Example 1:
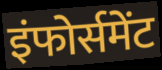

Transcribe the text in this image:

इंफोर्समेंट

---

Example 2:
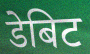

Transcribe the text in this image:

डेबिट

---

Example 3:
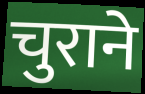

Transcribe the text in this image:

चुराने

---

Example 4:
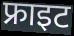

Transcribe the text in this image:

फ्राइट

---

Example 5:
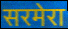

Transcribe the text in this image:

सरमेरा